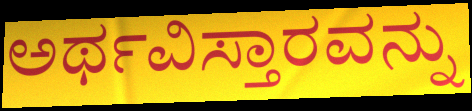
ಅರ್ಥವಿಸ್ತಾರವನ್ನು